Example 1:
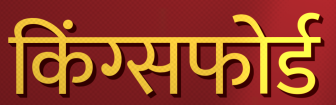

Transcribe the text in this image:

किंग्सफोर्ड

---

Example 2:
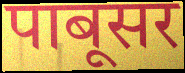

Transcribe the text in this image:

पाबूसर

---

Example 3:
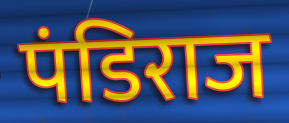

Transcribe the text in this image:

पंडिराज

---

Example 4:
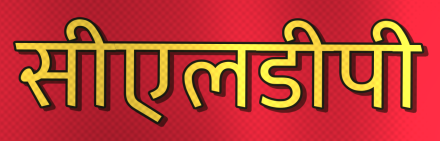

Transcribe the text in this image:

सीएलडीपी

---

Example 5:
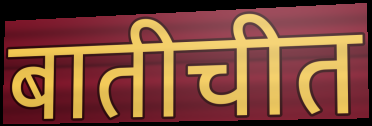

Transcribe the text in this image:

बातीचीत